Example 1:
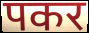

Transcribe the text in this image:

पकर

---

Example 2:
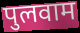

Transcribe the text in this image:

पुलवाम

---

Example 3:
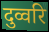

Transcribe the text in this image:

दुव्वरि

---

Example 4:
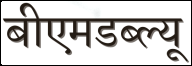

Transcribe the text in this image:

बीएमडब्ल्यू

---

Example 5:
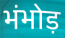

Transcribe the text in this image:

भंभोड़